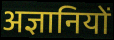
अज्ञानियों